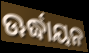
ଊର୍ଦ୍ଧାୟନ